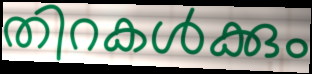
തിറകൾക്കും